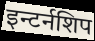
इन्टर्नशिप